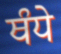
ਥੰਧੇ